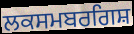
ਲਕਸਮਬਰਗਿਸ਼